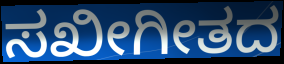
ಸಖೀಗೀತದ